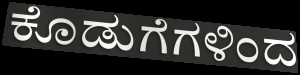
ಕೊಡುಗೆಗಳಿಂದ